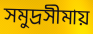
সমুদ্রসীমায়